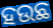
ହଉଛ